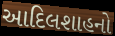
આદિલશાહનો